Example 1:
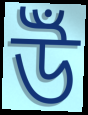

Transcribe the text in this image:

উঁ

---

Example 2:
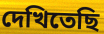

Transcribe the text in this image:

দেখিতেছি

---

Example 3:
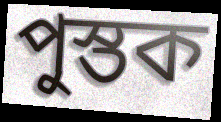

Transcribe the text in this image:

পুস্তক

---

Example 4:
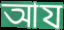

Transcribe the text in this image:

আয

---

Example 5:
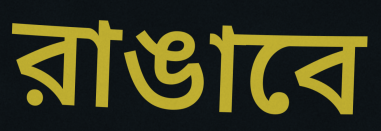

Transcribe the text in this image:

রাঙাবে